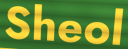
Sheol